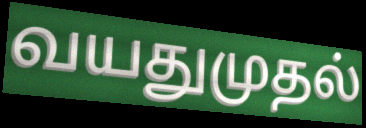
வயதுமுதல்